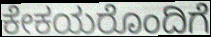
ಕೇಕಯರೊಂದಿಗೆ